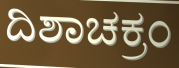
ದಿಶಾಚಕ್ರಂ